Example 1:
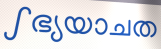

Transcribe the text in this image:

ഽഭ്യയാചത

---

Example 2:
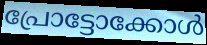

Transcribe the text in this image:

പ്രോട്ടോക്കോൾ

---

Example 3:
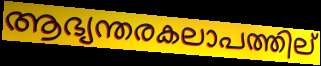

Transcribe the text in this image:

ആഭ്യന്തരകലാപത്തില്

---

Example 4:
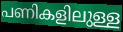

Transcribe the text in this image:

പണികളിലുള്ള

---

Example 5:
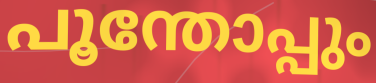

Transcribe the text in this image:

പൂന്തോപ്പും